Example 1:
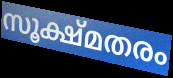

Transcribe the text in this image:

സൂക്ഷ്മതരം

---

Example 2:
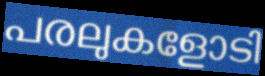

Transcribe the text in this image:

പരലുകളോടി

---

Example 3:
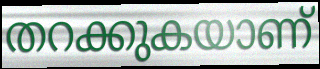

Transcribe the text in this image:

തറക്കുകയാണ്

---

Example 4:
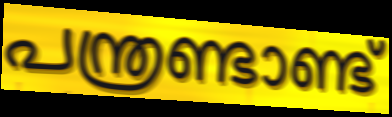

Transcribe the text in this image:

പന്ത്രണ്ടാണ്ട്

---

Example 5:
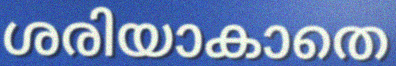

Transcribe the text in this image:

ശരിയാകാതെ